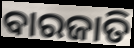
ବାରଜାତି